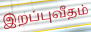
இறப்புவீதம்